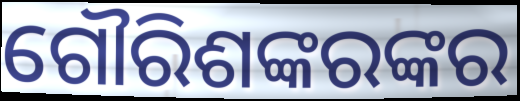
ଗୌରିଶଙ୍କରଙ୍କର